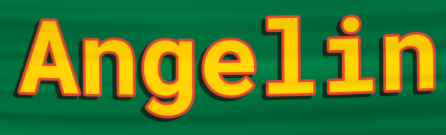
Angelin